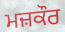
ਮਜ਼ਕੌਰ